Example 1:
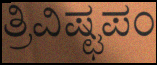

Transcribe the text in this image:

ತ್ರಿವಿಷ್ಟಪಂ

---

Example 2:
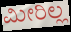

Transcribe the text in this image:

ಮೀರಿಲ್ಲ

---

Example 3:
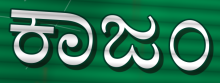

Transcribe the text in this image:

ಕಾಜಂ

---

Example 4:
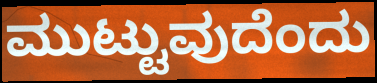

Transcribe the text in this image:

ಮುಟ್ಟುವುದೆಂದು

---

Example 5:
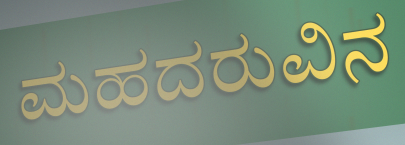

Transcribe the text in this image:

ಮಹದರುವಿನ